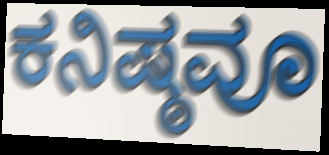
ಕನಿಷ್ಠವೂ